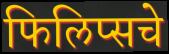
फिलिप्सचे